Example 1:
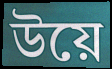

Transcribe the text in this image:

উয়ে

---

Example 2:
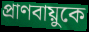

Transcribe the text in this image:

প্রাণবায়ুকে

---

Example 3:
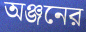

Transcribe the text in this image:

অঞ্জনের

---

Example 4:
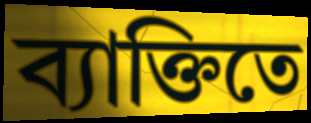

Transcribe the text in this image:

ব্যাক্তিতে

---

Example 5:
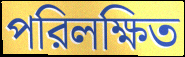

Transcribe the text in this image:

পরিলক্ষিত